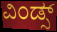
ವಿಂಡ್ಸ್